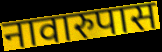
नावारुपास